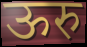
ऊरु